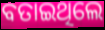
ବତାଇଥିଲେ